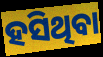
ହସିଥିବା